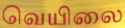
வெயிலை